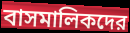
বাসমালিকদের